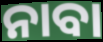
ନାବା